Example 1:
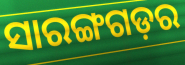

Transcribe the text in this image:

ସାରଙ୍ଗଗଡ଼ର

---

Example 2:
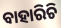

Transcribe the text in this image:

ବାହାରିଚି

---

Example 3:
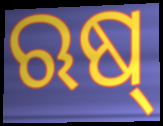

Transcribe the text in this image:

ଋଷ୍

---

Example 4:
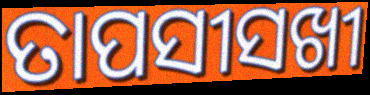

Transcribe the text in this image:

ତାପସୀସଖୀ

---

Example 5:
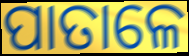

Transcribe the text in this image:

ପାତାଳେ